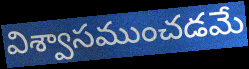
విశ్వాసముంచడమే